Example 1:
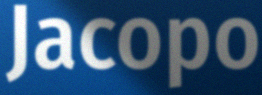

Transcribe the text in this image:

Jacopo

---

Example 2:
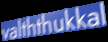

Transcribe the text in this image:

valththukkal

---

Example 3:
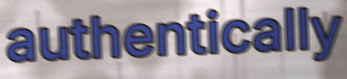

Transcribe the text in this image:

authentically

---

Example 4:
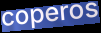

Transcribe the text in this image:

coperos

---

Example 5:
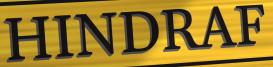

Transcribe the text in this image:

HINDRAF